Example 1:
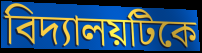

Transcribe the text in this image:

বিদ্যালয়টিকে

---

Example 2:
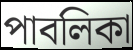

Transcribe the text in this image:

পাবলিকা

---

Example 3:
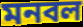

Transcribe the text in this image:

মনবল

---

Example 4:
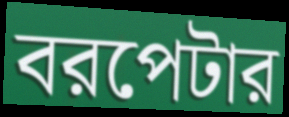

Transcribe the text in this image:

বরপেটার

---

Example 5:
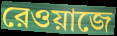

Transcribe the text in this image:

রেওয়াজে